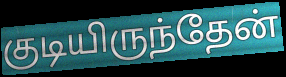
குடியிருந்தேன்